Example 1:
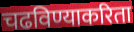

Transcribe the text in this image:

चढविण्याकरिता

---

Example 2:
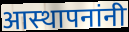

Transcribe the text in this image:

आस्थापनांनी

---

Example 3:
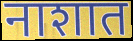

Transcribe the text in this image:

नाशात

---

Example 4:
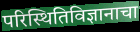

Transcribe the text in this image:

परिस्थितिविज्ञानाचा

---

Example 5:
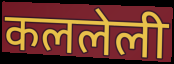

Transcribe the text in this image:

कललेली